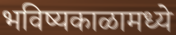
भविष्यकाळामध्ये